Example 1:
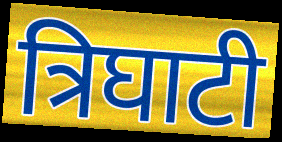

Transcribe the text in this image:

त्रिघाटी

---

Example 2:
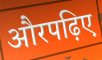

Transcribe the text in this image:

औरपढ़िए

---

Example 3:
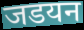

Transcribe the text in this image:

जडयन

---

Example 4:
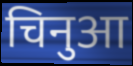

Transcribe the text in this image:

चिनुआ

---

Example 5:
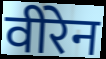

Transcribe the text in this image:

वीरेन